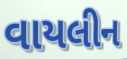
વાયલીન